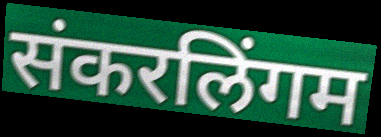
संकरलिंगम